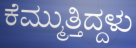
ಕೆಮ್ಮುತ್ತಿದ್ದಳು